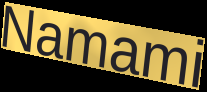
Namami